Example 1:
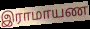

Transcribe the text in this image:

இராமாயண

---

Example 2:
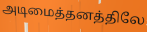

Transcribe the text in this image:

அடிமைத்தனத்திலே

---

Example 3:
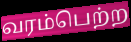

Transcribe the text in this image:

வரம்பெற்ற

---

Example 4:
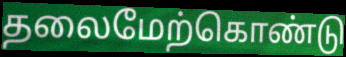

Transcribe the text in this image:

தலைமேற்கொண்டு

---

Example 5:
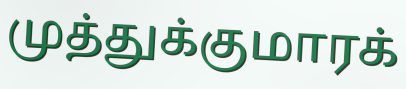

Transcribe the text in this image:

முத்துக்குமாரக்